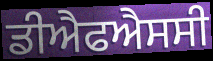
ਡੀਐਫਐਸਸੀ